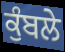
ਕੁੰਬਲੇ